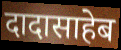
दादासाहेब